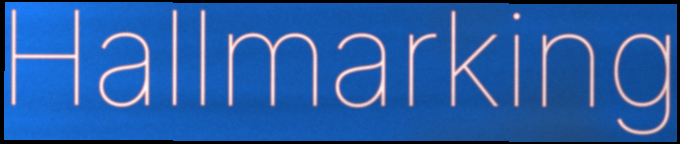
Hallmarking